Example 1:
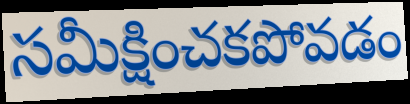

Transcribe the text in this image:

సమీక్షించకపోవడం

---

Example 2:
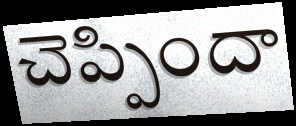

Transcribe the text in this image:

చెప్పిందా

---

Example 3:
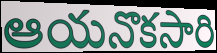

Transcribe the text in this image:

ఆయనొకసారి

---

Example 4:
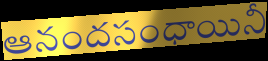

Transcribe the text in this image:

ఆనందసంధాయినీ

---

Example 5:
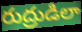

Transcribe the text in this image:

రుద్రుడిలా